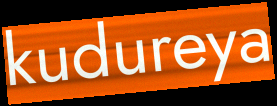
kudureya